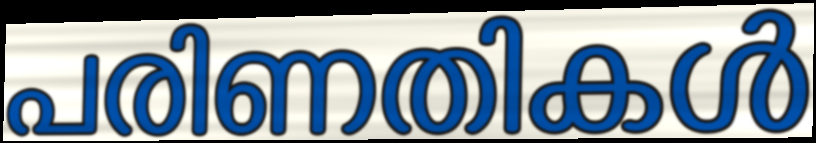
പരിണതികൾ